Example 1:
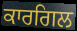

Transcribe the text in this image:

ਕਾਰਗਿਲ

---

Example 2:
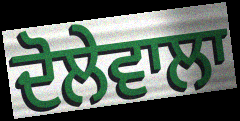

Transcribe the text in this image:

ਦੋਲੇਵਾਲਾ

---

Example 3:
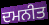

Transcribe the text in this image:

ਦਮਨੀਤ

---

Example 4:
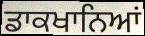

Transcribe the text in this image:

ਡਾਕਖਾਨਿਆਂ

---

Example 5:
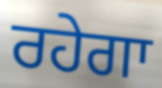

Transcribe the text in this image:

ਰਹੇਗਾ